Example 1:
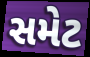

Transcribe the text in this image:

સમેટ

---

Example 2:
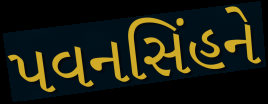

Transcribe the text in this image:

પવનસિંહને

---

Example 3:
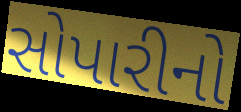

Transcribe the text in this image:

સોપારીનો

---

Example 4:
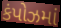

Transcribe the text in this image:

કંપોઝમાં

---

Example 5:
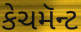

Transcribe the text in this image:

કેચમૅન્ટ